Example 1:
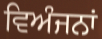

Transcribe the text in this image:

ਵਿਅੰਜਨਾਂ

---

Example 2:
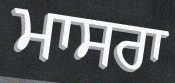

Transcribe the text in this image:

ਮਾਸਰਾ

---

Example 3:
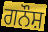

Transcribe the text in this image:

ਗਨੌਸ਼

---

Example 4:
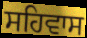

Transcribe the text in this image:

ਸਹਿਵਾਸ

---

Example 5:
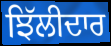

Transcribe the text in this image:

ਝਿੱਲੀਦਾਰ